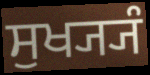
ਸੁਖ੍ਯ੍ਯੰ